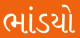
ભાંડયો